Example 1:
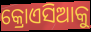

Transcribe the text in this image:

କ୍ରୋଏସିଆକୁ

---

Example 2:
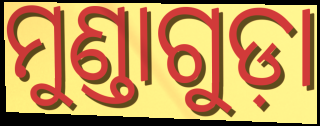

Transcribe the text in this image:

ମୁଣ୍ଡାଗୁଡ଼ା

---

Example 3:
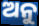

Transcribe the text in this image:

ଅନୁ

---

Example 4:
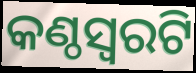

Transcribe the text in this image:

କଣ୍ଠସ୍ଵରଟି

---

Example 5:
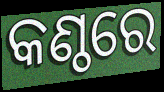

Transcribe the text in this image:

କଣ୍ଠରେ